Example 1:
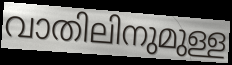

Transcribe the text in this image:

വാതിലിനുമുള്ള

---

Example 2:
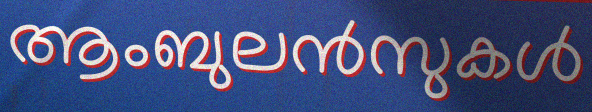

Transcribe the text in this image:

ആംബുലൻസുകൾ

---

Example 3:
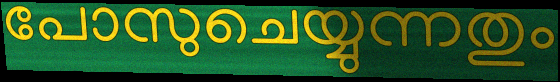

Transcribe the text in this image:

പോസുചെയ്യുന്നതും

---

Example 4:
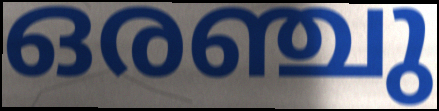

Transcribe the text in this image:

ഒരഞ്ചു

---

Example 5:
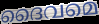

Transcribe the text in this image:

ദൈവമെ